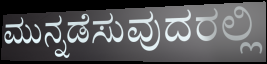
ಮುನ್ನಡೆಸುವುದರಲ್ಲಿ